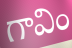
గావిం